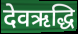
देवऋद्धि